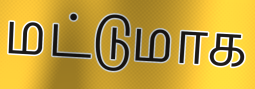
மட்டுமாக